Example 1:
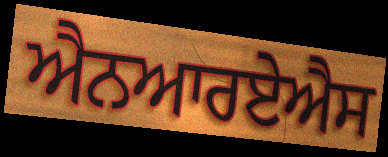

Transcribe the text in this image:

ਐਨਆਰਏਐਸ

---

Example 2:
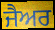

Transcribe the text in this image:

ਜੈਅਰ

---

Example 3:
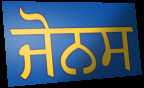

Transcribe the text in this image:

ਜੋਨਸ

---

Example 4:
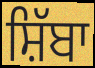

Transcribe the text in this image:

ਸ਼ਿੱਬਾ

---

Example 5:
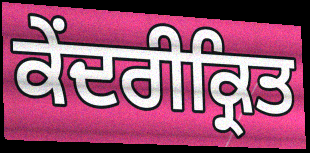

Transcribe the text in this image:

ਕੇਂਦਰੀਕ੍ਰਿਤ